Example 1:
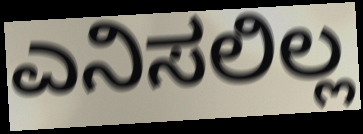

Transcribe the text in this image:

ಎನಿಸಲಿಲ್ಲ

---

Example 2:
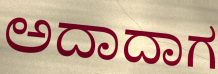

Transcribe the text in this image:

ಅದಾದಾಗ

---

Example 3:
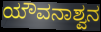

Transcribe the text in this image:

ಯೌವನಾಶ್ವನ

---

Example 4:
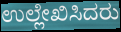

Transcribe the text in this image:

ಉಲ್ಲೇಖಿಸಿದರು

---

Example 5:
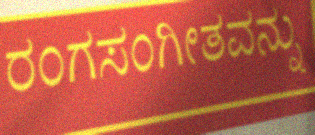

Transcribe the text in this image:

ರಂಗಸಂಗೀತವನ್ನು